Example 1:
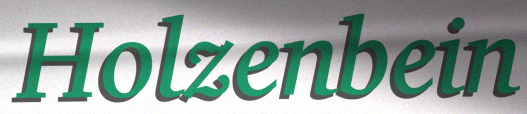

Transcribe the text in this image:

Holzenbein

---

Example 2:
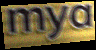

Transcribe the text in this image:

mya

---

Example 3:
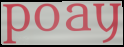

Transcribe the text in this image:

poay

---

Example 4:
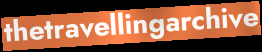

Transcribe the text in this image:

thetravellingarchive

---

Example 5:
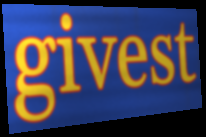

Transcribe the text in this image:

givest